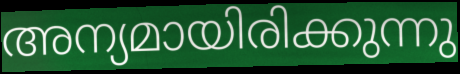
അന്യമായിരിക്കുന്നു